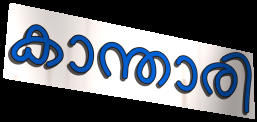
കാന്താരി